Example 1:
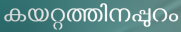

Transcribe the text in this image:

കയറ്റത്തിനപ്പുറം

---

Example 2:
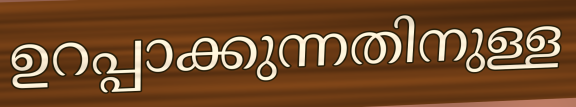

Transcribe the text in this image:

ഉറപ്പാക്കുന്നതിനുള്ള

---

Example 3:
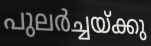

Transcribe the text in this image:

പുലർച്ചയ്ക്കു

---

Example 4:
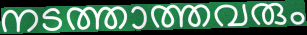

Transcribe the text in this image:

നടത്താത്തവരും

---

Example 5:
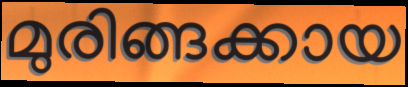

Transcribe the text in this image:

മുരിങ്ങക്കായ